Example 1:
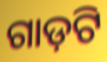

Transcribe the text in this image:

ଗାଡ଼ଟି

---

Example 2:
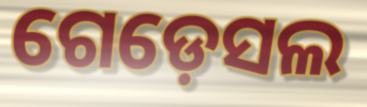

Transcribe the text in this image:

ଗେଡ଼େସଲ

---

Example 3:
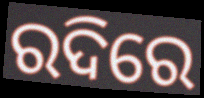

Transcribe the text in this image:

ରଦିରେ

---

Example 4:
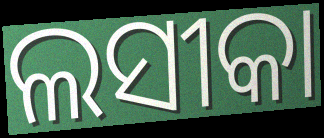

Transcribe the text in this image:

ଲସୀକା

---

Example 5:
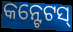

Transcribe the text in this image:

କନ୍ଟେଟସ୍